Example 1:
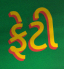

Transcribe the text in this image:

ફેટી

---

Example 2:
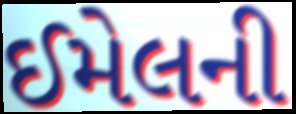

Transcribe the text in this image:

ઈમેલની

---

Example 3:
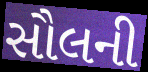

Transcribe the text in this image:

સૌલની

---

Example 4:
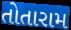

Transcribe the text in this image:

તોતારામ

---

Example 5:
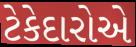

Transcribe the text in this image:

ટેકેદારોએ